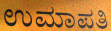
ಉಮಾಪತಿ